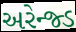
અરેન્જ્ડ